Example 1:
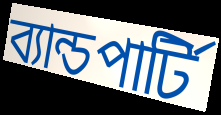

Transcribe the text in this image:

ব্যান্ডপার্টি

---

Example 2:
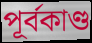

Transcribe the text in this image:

পূর্বকাণ্ড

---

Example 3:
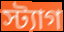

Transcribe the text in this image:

স্ট্যাগ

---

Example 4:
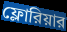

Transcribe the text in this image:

ফ্লোরিয়ার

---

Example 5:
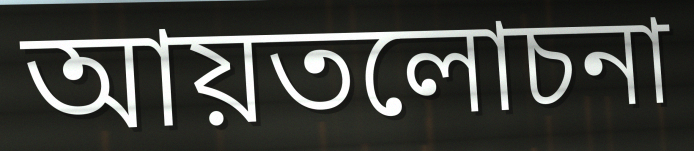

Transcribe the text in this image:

আয়তলোচনা